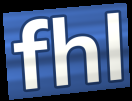
fhl